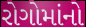
રોગોમાંનો